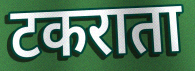
टकराता